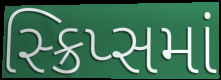
સ્ક્રિપ્સમાં